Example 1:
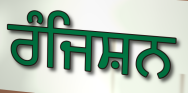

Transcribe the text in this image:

ਰੰਜਿਸ਼ਨ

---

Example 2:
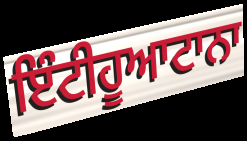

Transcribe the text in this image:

ਇੰਟੀਹੂਆਟਾਨਾ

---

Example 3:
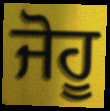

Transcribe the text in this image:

ਜੋਹੂ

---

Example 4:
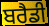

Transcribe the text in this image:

ਬਰੈਡੀ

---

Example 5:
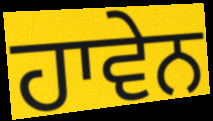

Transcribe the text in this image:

ਹਾਵੇਨ